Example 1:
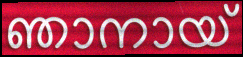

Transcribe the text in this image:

ഞാനായ്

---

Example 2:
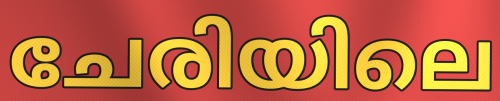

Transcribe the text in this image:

ചേരിയിലെ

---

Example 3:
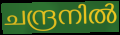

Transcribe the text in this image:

ചന്ദ്രനിൽ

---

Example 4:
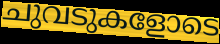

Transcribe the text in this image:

ചുവടുകളോടെ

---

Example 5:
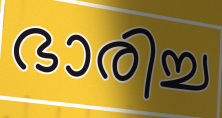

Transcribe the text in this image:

ഭാരിച്ച